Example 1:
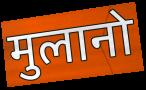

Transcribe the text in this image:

मुलानो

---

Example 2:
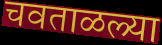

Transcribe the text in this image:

चवताळल्या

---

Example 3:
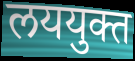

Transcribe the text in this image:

लययुक्त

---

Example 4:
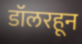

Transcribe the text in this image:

डॉलरहून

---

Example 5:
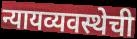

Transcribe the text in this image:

न्यायव्यवस्थेची